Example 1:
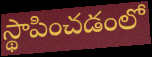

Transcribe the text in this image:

స్థాపించడంలో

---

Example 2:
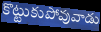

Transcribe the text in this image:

కొట్టుకుపోవువాడు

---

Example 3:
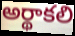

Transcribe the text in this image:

అర్థాకలి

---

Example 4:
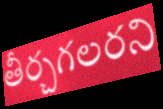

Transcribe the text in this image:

తీర్చగలరని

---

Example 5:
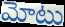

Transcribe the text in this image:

మోటు